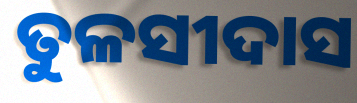
ତୁଳସୀଦାସ